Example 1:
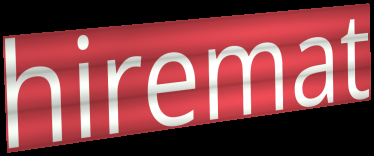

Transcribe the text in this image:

hiremat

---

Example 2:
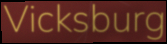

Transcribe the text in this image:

Vicksburg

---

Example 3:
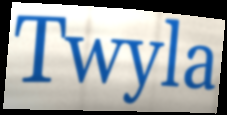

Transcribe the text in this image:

Twyla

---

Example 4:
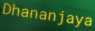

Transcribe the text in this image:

Dhananjaya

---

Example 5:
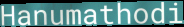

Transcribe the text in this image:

Hanumathodi